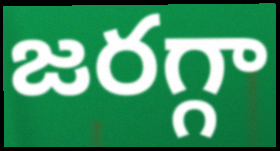
జరగ్గా